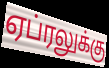
ஏப்ரலுக்கு